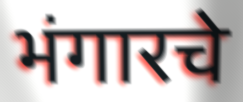
भंगारचे